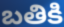
బతికి